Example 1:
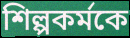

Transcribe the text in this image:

শিল্পকর্মকে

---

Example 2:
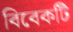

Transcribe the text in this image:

বিবেকটি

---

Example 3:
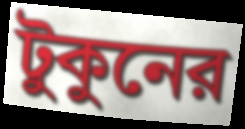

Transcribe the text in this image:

টুকুনের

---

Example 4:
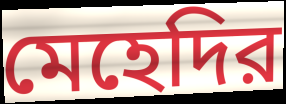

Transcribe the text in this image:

মেহেদির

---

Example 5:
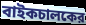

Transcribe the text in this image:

বাইকচালকের